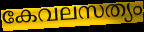
കേവലസത്യം